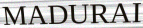
MADURAI